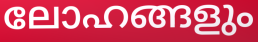
ലോഹങ്ങളും